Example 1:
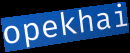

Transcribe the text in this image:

opekhai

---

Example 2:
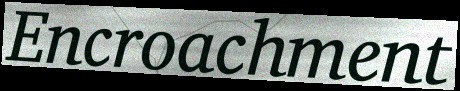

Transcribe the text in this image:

Encroachment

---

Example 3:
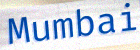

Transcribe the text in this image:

Mumbai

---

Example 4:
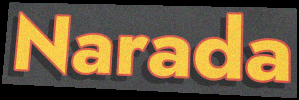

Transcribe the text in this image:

Narada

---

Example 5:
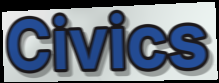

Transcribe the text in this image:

Civics